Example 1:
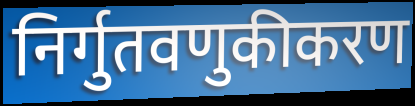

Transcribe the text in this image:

निर्गुतवणुकीकरण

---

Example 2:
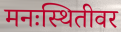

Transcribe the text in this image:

मनःस्थितीवर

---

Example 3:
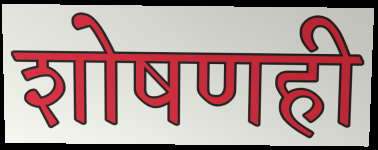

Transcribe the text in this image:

शोषणही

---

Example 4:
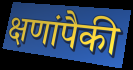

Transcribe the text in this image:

क्षणांपैकी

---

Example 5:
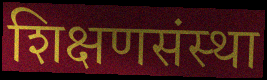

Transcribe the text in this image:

शिक्षणसंस्था